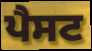
ਪੈਸਟ